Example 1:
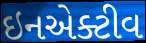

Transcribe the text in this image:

ઇનએક્ટીવ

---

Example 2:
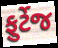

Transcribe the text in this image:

ફુર્ટેજ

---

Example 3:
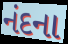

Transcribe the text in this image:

નંદના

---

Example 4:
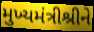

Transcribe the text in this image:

મુખ્યમંત્રીશ્રીને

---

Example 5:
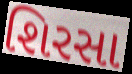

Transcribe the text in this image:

શિરસા